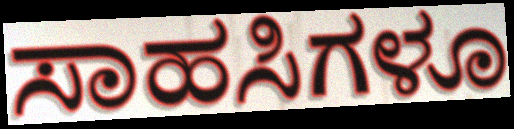
ಸಾಹಸಿಗಳೂ